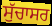
ਸੁੱਚਾਸਰ